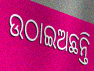
ଉଠାଇଅଛନ୍ତି